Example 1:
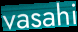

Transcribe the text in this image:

vasahi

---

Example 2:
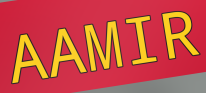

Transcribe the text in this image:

AAMIR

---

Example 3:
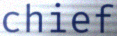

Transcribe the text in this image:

chief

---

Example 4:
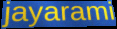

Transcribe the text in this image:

jayarami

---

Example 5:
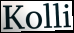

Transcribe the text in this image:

Kolli